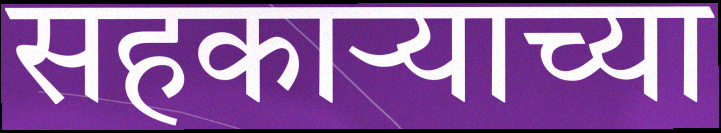
सहकार्‍याच्या